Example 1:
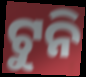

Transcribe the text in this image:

ଟୁନି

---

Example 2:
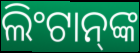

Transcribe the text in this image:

ଲିଂଟାନ୍‍ଙ୍କ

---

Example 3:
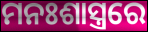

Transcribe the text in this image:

ମନଃଶାସ୍ତ୍ରରେ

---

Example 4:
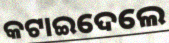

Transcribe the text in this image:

କଟାଇଦେଲେ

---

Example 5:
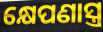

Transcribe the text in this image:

କ୍ଷେପଣାସ୍ତ୍ର